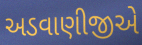
અડવાણીજીએ